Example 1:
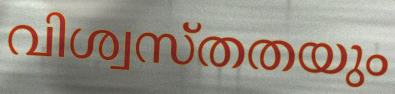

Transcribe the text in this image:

വിശ്വസ്തതയും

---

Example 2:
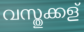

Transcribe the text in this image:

വസ്തുക്കള്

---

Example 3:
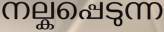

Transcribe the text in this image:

നല്കപ്പെടുന്ന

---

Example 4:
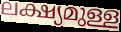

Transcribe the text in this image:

ലക്ഷ്യമുള്ള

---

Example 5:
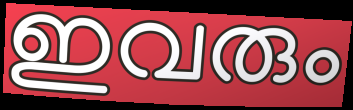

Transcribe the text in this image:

ഇവരും